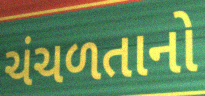
ચંચળતાનો